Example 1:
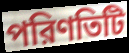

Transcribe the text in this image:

পরিণতিটি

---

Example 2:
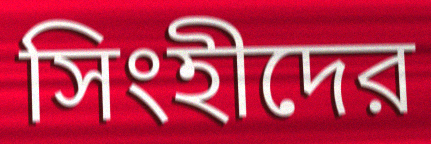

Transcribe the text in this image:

সিংহীদের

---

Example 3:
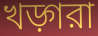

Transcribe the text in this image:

খড়্গরা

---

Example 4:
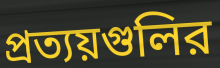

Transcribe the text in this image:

প্রত্যয়গুলির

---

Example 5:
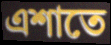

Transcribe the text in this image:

এশাতে